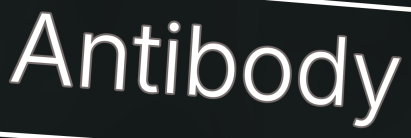
Antibody